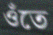
ওঁতে